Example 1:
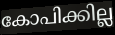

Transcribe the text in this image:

കോപിക്കില്ല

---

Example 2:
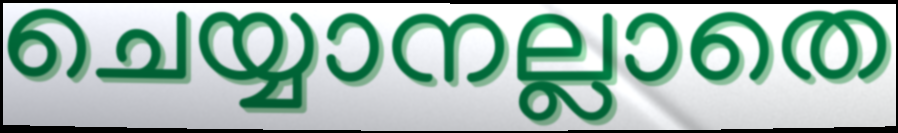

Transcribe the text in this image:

ചെയ്യാനല്ലാതെ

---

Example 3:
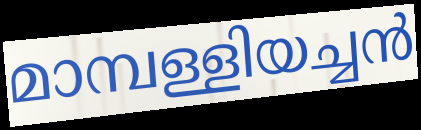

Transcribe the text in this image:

മാമ്പള്ളിയച്ചൻ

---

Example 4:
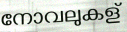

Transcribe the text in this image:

നോവലുകള്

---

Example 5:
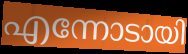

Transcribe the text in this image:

എന്നോടായി